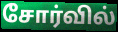
சோர்வில்